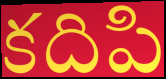
కదిపి